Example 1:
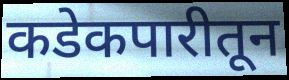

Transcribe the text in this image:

कडेकपारीतून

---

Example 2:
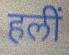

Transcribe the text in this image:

हलीं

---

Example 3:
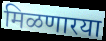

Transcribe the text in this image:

मिळणारया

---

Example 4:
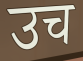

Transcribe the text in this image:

उच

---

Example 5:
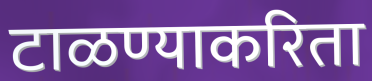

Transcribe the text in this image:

टाळण्याकरिता